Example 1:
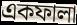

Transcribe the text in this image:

একফালা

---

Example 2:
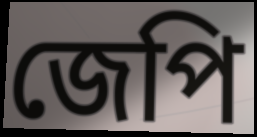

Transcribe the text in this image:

জেপি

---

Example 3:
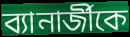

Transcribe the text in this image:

ব্যানার্জীকে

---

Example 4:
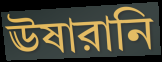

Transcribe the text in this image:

ঊষারানি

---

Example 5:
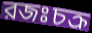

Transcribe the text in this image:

রজঃচক্র